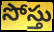
సోస్తు